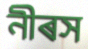
নীৰস